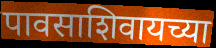
पावसाशिवायच्या